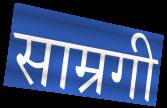
साम्रगी